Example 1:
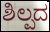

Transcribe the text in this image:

ಶಿಲ್ಪದ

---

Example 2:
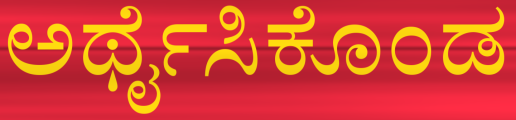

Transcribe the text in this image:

ಅರ್ಥೈಸಿಕೊಂಡ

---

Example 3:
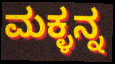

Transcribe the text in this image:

ಮಕ್ಳನ್ನ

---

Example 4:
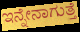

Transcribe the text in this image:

ಇನ್ನೇನಾಗುತ್ತೆ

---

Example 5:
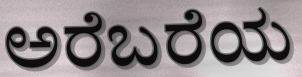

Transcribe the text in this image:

ಅರೆಬರೆಯ